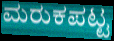
ಮರುಕಪಟ್ಟ